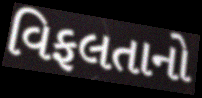
વિફલતાનો